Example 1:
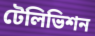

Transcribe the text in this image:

টেলিভিশন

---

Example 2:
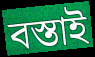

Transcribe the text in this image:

বস্তাই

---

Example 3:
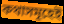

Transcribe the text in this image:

কথাসমূহেই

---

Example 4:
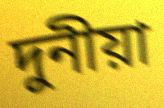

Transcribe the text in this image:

দুনীয়া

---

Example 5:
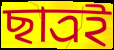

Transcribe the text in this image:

ছাত্ৰই